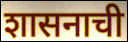
शासनाची